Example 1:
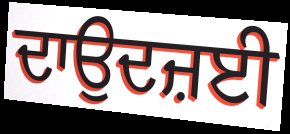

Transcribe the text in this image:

ਦਾਉਦਜ਼ਈ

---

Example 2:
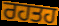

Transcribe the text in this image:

ਰਹਤਹ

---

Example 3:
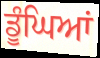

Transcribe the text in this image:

ਡੂੰਘਿਆਂ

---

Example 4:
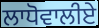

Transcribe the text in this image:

ਲਾਧੋਵਾਲੀਏ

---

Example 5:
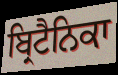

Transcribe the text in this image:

ਬ੍ਰਿਟੈਨਿਕਾ